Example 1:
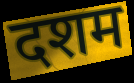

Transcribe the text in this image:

दशम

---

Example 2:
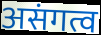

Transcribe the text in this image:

असंगत्व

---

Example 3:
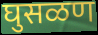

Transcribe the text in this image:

घुसळण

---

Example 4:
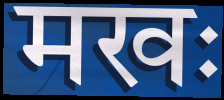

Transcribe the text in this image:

मखः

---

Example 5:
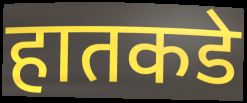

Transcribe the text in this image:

हातकडे